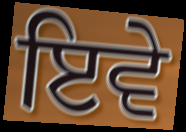
ਇਵੇ